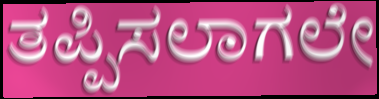
ತಪ್ಪಿಸಲಾಗಲೇ